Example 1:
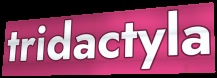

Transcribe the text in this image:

tridactyla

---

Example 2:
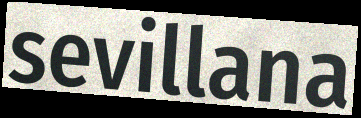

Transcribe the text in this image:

sevillana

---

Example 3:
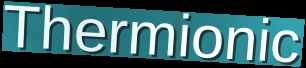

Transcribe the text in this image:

Thermionic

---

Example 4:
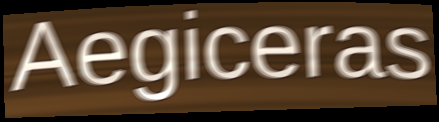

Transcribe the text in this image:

Aegiceras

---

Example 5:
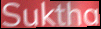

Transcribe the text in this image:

Suktha